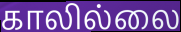
காலில்லை